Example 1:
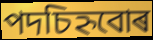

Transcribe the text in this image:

পদচিহ্নবোৰ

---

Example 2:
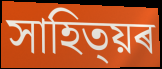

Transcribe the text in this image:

সাহিত্য়ৰ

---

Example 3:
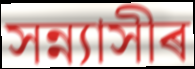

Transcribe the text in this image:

সন্ন্যাসীৰ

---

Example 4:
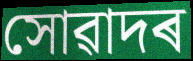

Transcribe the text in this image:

সোৱাদৰ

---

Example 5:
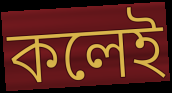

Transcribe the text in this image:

কলেই